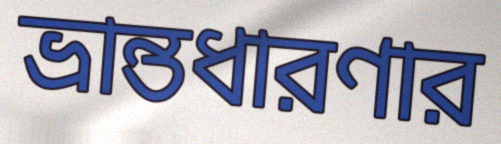
ভ্রান্তধারণার